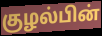
குழல்பின்